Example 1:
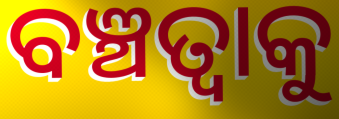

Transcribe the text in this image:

ବଞ୍ଚତ୍ବାକୁ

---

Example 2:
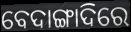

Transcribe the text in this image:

ବେଦାଙ୍ଗାଦିରେ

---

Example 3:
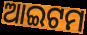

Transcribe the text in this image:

ଆଇଟମ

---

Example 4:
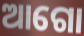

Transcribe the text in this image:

ଆଗୋ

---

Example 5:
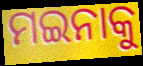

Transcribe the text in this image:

ମଇନାକୁ